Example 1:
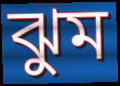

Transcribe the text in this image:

ঝুম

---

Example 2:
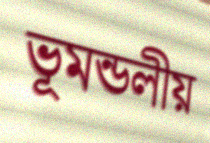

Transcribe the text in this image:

ভূমন্ডলীয়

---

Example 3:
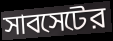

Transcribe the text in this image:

সাবসেটের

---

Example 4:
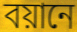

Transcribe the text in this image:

বয়ানে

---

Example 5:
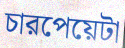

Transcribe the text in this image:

চারপেয়েটা